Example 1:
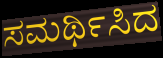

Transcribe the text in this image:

ಸಮರ್ಥಿಸಿದ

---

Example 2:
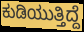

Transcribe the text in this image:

ಕುಡಿಯುತ್ತಿದ್ದೆ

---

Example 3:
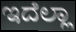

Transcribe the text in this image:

ಇದೆಲ್ಲಾ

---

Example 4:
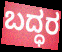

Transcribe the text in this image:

ಬದ್ಧರ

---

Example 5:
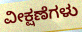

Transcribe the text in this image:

ವೀಕ್ಷಣೆಗಳು